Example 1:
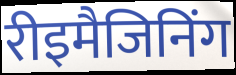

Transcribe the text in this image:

रीइमैजिनिंग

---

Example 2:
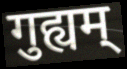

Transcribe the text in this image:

गुह्यम्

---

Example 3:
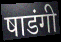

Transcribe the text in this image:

षाडंगी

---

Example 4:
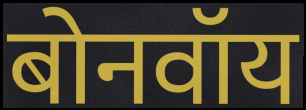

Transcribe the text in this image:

बोनवॉय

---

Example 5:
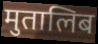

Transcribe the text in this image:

मुतालिब